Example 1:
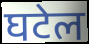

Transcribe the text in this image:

घटेल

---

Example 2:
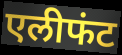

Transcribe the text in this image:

एलीफंट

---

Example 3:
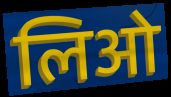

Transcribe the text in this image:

लिओ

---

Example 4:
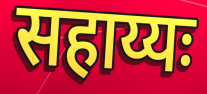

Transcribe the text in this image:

सहाय्यः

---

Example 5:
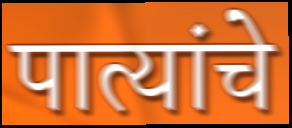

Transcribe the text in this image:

पात्यांचे